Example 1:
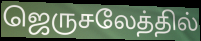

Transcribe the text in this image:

ஜெருசலேத்தில்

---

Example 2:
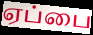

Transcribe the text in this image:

ஏப்பை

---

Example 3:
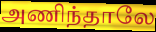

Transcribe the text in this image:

அணிந்தாலே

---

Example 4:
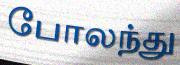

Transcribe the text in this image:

போலந்து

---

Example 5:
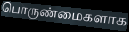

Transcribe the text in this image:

பொருண்மைகளாக